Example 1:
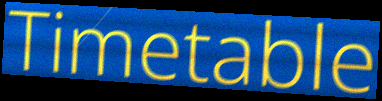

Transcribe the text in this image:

Timetable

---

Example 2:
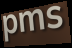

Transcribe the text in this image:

pms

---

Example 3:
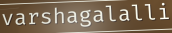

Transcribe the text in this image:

varshagalalli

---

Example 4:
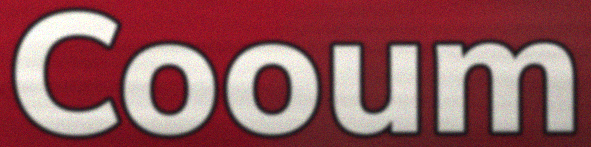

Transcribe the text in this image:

Cooum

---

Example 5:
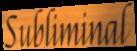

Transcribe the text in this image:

Subliminal